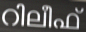
റിലീഫ്